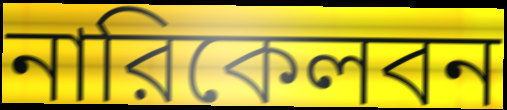
নারিকেলবন